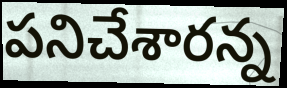
పనిచేశారన్న